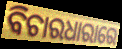
ବିଚାରଧାରାରେ